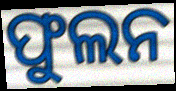
ଫୁଲନ